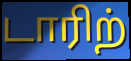
டாரிற்